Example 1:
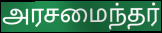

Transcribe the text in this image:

அரசமைந்தர்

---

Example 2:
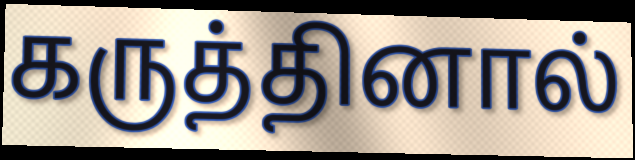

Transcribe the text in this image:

கருத்தினால்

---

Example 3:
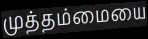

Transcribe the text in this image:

முத்தம்மையை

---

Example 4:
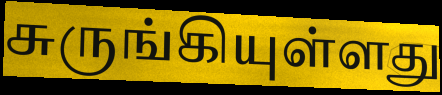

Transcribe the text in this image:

சுருங்கியுள்ளது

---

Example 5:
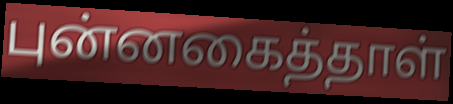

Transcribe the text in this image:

புன்னகைத்தாள்